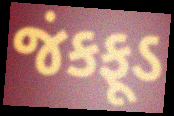
જંકફૂડ